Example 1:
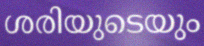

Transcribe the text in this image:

ശരിയുടെയും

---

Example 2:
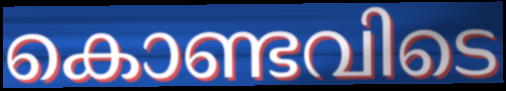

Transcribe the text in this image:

കൊണ്ടവിടെ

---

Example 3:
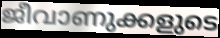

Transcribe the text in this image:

ജീവാണുക്കളുടെ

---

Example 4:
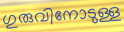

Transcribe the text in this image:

ഗുരുവിനോടുള്ള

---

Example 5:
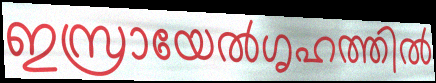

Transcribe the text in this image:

ഇസ്രായേൽഗൃഹത്തിൽ